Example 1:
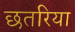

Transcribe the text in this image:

छतरिया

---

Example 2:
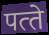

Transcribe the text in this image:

पत्‍ते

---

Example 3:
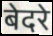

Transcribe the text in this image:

बेदरे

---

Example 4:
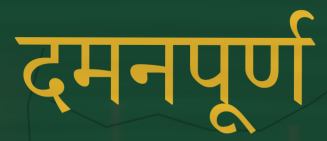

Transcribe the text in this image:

दमनपूर्ण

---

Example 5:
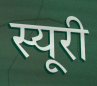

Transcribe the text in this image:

स्यूरी